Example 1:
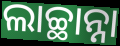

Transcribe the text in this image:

ଲାଚ୍ଛାନ୍ନା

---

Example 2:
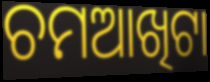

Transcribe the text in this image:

ଚମଆଖିଟା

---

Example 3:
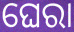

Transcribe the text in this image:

ଘେରା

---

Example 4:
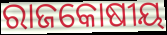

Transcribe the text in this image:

ରାଜକୋଷୀୟ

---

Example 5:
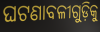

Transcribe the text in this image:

ଘଟଣାବଳୀଗୁଡ଼ିକୁ